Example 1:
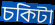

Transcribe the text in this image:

চকিটা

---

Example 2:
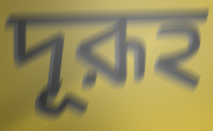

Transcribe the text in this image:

দূরূহ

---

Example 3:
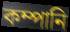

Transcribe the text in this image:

কম্পানি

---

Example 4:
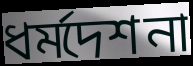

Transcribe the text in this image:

ধর্মদেশনা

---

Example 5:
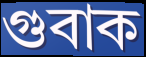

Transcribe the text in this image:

গুবাক